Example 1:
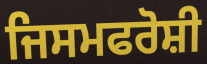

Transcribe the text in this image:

ਜਿਸਮਫਰੋਸ਼ੀ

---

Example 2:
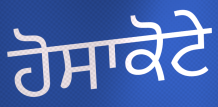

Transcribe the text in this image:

ਹੋਸਾਕੋਟੇ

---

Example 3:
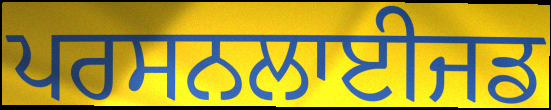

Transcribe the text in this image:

ਪਰਸਨਲਾਈਜਡ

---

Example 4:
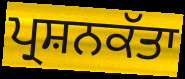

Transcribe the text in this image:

ਪ੍ਰਸ਼ਨਕੱਤਾ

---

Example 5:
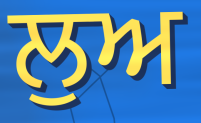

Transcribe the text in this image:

ਲੁਅ